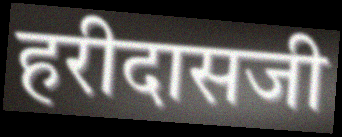
हरीदासजी